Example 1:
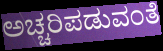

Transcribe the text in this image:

ಅಚ್ಚರಿಪಡುವಂತೆ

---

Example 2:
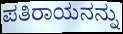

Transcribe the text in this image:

ಪತಿರಾಯನನ್ನು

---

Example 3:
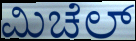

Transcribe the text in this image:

ಮಿಚೆಲ್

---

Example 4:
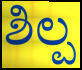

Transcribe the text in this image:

ಶಿಲ್ಪ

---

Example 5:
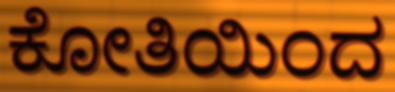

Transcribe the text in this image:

ಕೋತಿಯಿಂದ